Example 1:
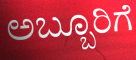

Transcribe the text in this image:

ಅಬ್ಬೂರಿಗೆ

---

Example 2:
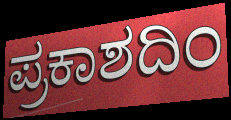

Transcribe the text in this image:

ಪ್ರಕಾಶದಿಂ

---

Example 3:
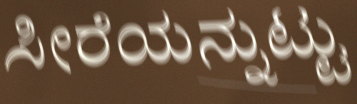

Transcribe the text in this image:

ಸೀರೆಯನ್ನುಟ್ಟು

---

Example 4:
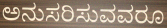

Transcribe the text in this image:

ಅನುಸರಿಸುವವರೂ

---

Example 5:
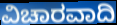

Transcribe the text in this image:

ವಿಚಾರವಾದಿ